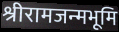
श्रीरामजन्मभूमि